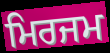
ਮਿਰਜਮ